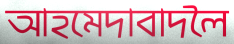
আহমেদাবাদলৈ